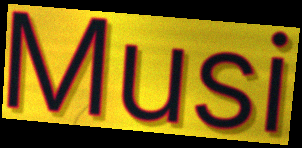
Musi